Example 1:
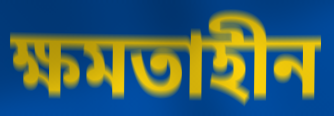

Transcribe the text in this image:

ক্ষমতাহীন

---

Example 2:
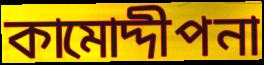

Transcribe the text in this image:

কামোদ্দীপনা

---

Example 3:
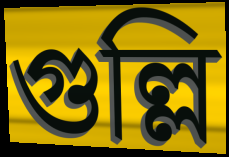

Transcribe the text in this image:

গুল্লি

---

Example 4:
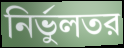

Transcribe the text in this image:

নির্ভুলতর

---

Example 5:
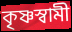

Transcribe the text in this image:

কৃষ্ণস্বামী